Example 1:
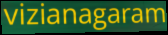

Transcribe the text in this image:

vizianagaram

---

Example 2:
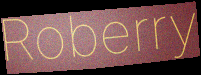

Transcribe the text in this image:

Roberry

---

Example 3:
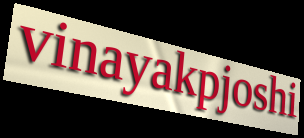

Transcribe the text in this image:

vinayakpjoshi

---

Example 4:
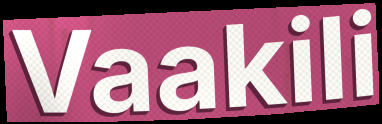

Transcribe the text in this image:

Vaakili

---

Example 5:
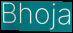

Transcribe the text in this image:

Bhoja